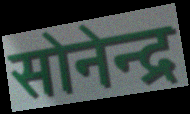
सोनेन्द्र